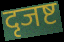
दृजष्ट